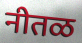
नीतळ